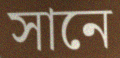
সানে